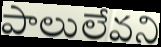
పాలులేవని